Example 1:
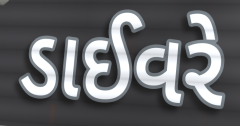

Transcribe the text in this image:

ડાઈવરે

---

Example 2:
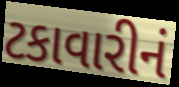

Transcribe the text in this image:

ટકાવારીનં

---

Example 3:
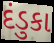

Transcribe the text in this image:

દંડુકા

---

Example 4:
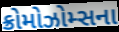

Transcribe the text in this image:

ક્રોમોઝોમ્સના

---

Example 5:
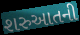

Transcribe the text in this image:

શરુઆતની